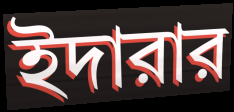
ইদারার